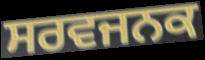
ਸਰਵਜਨਕ